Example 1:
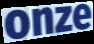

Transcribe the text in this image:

onze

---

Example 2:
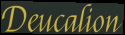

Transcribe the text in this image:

Deucalion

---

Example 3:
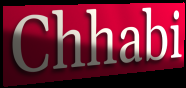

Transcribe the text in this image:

Chhabi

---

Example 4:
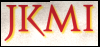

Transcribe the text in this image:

JKMI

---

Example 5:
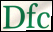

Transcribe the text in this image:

Dfc